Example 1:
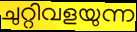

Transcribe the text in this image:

ചുറ്റിവളയുന്ന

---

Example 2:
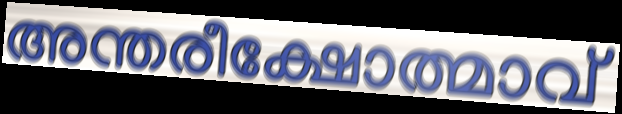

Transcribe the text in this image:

അന്തരീക്ഷോത്മാവ്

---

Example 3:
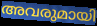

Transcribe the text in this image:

അവരുമായി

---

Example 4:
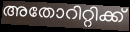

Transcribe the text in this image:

അതോറിറ്റിക്ക്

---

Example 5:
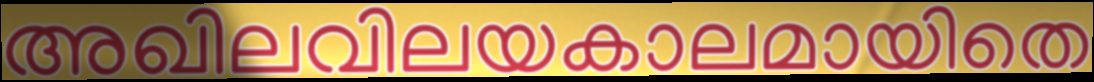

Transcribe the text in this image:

അഖിലവിലയകാലമായിതെ